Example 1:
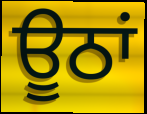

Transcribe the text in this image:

ਊਠਾਂ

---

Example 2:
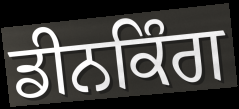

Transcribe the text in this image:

ਡੀਨਕਿੰਗ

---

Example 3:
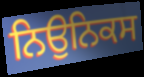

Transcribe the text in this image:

ਨਿਉਨਿਕਸ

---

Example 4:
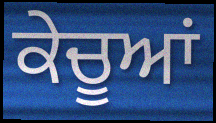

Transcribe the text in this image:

ਕੇਚੂਆਂ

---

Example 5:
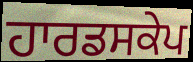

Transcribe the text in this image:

ਹਾਰਡਸਕੇਪ